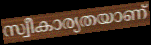
സ്വീകാര്യതയാണ്